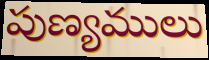
పుణ్యములు